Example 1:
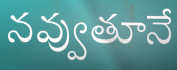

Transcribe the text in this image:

నవ్వుతూనే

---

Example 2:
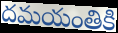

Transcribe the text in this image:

దమయంతికి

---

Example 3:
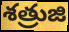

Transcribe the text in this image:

శత్రుజి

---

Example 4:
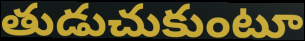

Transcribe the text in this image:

తుడుచుకుంటూ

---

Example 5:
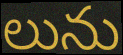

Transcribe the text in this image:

లును